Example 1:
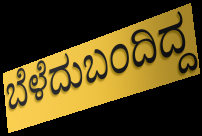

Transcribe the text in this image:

ಬೆಳೆದುಬಂದಿದ್ದ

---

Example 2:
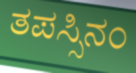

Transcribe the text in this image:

ತಪಸ್ಸಿನಂ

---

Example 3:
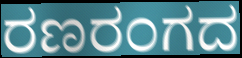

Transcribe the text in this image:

ರಣರಂಗದ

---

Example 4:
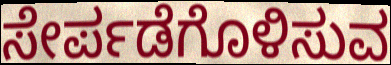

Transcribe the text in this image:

ಸೇರ್ಪಡೆಗೊಳಿಸುವ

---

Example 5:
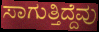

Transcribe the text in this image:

ಸಾಗುತ್ತಿದ್ದೆವು